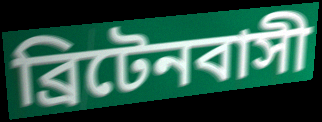
ব্রিটেনবাসী